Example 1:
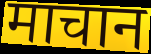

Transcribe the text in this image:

माचान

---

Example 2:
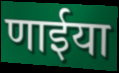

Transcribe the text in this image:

णाईया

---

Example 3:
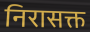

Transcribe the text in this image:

निरासक्त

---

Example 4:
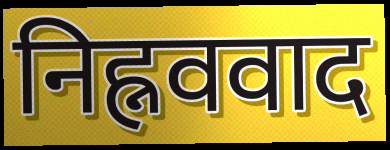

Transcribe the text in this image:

निह्नववाद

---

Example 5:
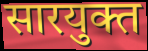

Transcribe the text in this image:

सारयुक्त